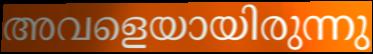
അവളെയായിരുന്നു